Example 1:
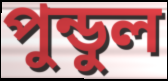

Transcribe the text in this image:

পুন্ডুল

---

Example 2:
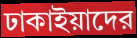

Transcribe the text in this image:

ঢাকাইয়াদের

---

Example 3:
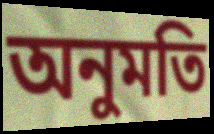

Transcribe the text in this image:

অনুমতি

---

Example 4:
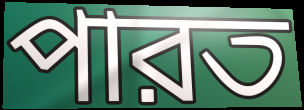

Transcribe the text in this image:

পারত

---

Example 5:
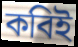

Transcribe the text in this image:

কবিই